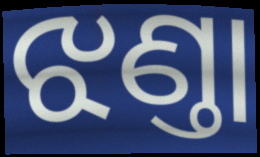
ଝଣ୍ତା